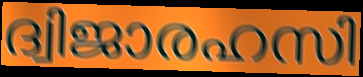
ദ്വിജാരഹസി